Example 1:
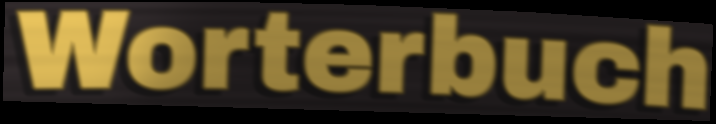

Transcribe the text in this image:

Worterbuch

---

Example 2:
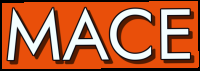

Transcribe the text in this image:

MACE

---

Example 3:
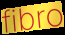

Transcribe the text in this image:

fibro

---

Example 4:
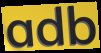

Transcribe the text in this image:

adb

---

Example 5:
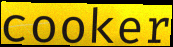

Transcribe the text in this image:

cooker